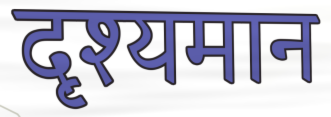
दृश्यमान